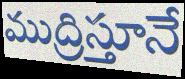
ముద్రిస్తూనే